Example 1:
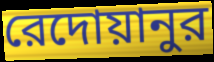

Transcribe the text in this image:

রেদোয়ানুর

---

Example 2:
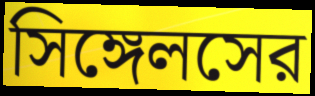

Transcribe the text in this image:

সিঙ্গেলসের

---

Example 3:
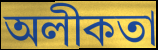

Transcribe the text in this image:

অলীকতা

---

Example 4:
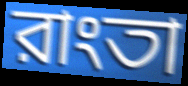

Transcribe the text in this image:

রাংতা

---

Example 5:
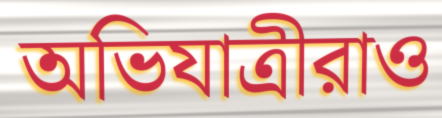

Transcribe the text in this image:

অভিযাত্রীরাও